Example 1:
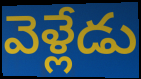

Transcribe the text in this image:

వెళ్లేడు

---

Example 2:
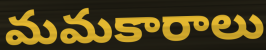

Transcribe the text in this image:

మమకారాలు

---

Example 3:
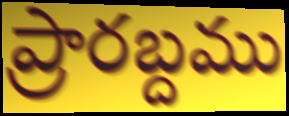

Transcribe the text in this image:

ప్రారబ్దము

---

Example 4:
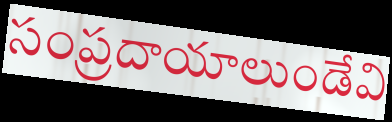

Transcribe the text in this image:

సంప్రదాయాలుండేవి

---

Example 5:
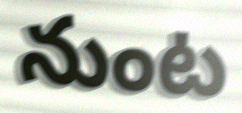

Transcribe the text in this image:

నుంట